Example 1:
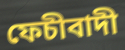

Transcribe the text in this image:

ফেচীবাদী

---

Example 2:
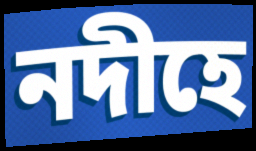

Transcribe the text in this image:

নদীহে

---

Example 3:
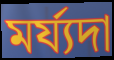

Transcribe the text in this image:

মৰ্য্যদা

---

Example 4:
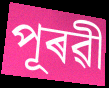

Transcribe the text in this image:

পূৰৱী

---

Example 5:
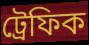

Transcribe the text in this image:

ট্ৰেফিক